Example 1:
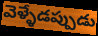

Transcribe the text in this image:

వెళ్ళేడప్పుడు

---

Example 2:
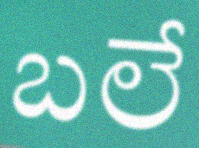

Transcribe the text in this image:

బలే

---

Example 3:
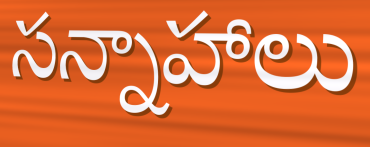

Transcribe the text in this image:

సన్నాహాలు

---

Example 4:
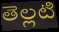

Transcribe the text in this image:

తెల్లటి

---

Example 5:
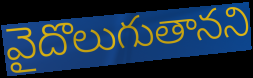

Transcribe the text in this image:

వైదొలుగుతానని